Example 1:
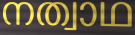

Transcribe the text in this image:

നത്വാഥ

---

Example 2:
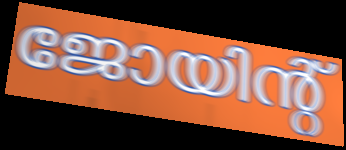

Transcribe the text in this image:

ജോയിന്റ്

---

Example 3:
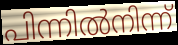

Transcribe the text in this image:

പിന്നിൽനിന്ന്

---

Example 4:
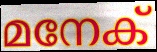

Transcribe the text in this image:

മനേക്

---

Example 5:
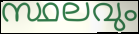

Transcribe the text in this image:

സ്ഥലവും